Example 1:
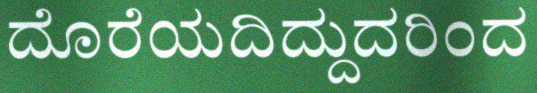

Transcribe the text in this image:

ದೊರೆಯದಿದ್ದುದರಿಂದ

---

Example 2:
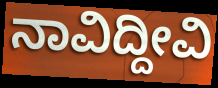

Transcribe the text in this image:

ನಾವಿದ್ದೀವಿ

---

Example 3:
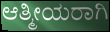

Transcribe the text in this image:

ಆತ್ಮೀಯರಾಗಿ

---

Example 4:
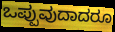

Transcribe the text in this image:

ಒಪ್ಪುವುದಾದರೂ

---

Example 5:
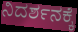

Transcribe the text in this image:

ನಿದರ್ಶನಕ್ಕೆ